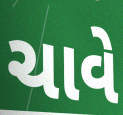
ચાવે